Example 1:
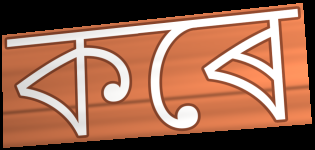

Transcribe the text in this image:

কৰে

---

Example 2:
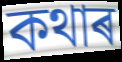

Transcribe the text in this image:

কথাৰ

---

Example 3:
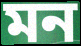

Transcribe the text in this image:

মন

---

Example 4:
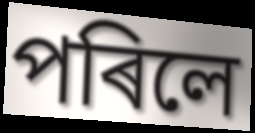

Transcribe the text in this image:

পৰিলে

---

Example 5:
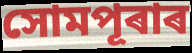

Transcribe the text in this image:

সোমপূৰাৰ